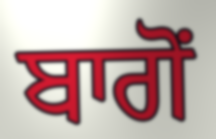
ਬਾਗੋਂ